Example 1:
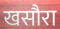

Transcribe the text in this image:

खसौरा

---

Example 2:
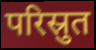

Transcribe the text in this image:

परिस्रुत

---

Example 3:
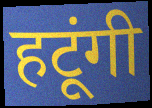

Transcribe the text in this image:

हटूंगी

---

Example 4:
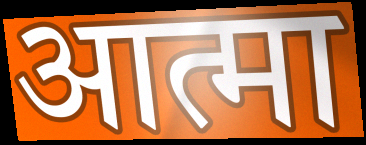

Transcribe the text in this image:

आत्‍मा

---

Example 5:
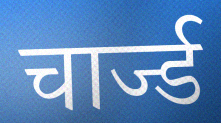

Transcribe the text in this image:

चार्ज्ड